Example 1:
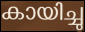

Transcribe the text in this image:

കായിച്ചു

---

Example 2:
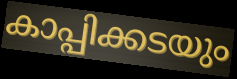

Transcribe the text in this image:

കാപ്പിക്കടയും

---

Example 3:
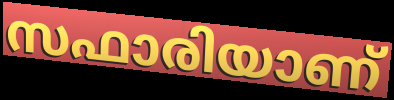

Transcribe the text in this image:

സഫാരിയാണ്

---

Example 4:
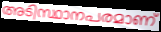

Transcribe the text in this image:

അടിസ്ഥാനപരമാണ്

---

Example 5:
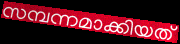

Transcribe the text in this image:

സമ്പന്നമാക്കിയത്